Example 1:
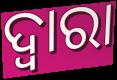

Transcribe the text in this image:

ଦ୍ବାରା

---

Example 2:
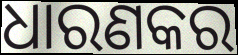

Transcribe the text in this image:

ଧାରଣକର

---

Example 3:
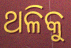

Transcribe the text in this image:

ଥଳିକୁ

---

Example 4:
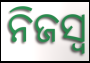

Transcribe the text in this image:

ନିଜସ୍ୱ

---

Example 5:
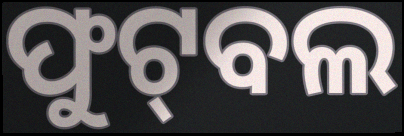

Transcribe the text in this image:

ଫୁଟ୍‌ବଲ